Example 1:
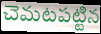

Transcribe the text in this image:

చెమటపట్టిన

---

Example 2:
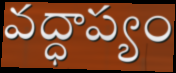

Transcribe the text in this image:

వద్ధాప్యం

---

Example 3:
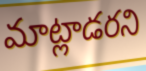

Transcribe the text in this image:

మాట్లాడరని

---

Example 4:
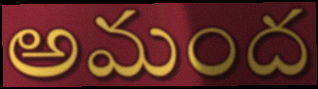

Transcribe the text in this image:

అమంద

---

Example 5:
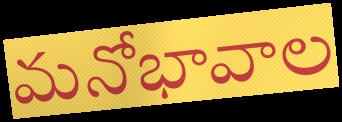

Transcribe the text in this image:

మనోభావాల